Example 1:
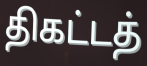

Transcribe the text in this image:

திகட்டத்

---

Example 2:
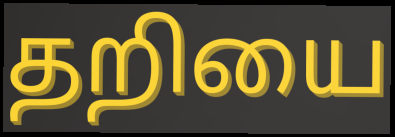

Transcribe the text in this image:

தறியை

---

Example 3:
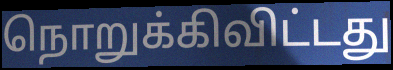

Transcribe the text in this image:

நொறுக்கிவிட்டது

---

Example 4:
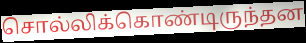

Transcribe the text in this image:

சொல்லிக்கொண்டிருந்தன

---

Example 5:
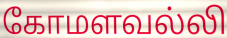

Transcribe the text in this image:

கோமளவல்லி